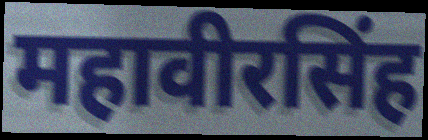
महावीरसिंह